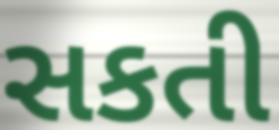
સકતી